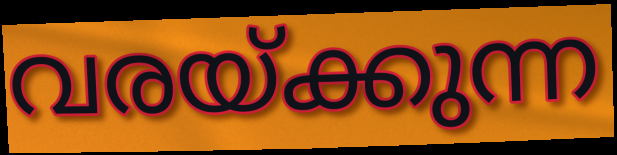
വരയ്ക്കുന്ന